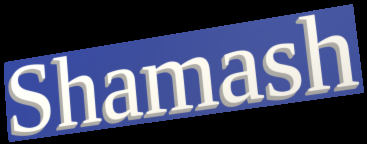
Shamash